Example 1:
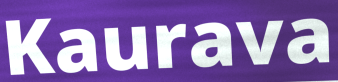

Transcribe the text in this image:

Kaurava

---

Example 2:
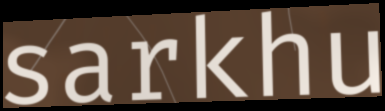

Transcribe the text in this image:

sarkhu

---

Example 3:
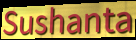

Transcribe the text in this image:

Sushanta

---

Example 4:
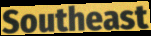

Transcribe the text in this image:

Southeast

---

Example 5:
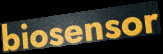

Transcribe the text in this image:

biosensor